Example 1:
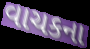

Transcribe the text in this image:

વાચકના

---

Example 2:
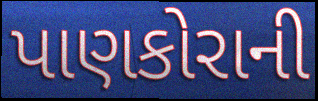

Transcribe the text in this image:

પાણકોરાની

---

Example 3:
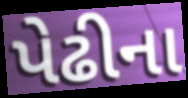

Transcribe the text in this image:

પેઢીના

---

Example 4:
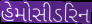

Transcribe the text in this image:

હેમોસીડરિન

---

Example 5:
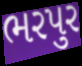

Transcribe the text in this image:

ભરપુર